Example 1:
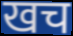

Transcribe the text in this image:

खच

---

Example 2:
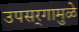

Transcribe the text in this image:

उपसर्गामुळे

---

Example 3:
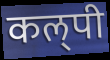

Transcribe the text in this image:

कल्पी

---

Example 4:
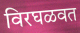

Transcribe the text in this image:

विरघळवत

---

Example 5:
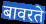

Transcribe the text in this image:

बावरते